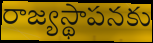
రాజ్యస్థాపనకు